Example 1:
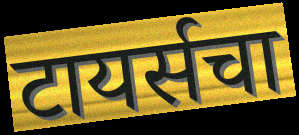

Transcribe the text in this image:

टायर्सचा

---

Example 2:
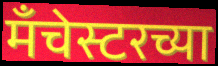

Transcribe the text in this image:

मँचेस्टरच्या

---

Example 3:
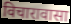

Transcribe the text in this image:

विचारावासा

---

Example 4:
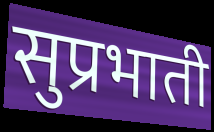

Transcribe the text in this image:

सुप्रभाती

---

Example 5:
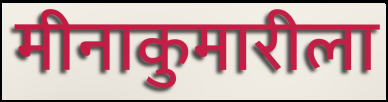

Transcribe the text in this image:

मीनाकुमारीला